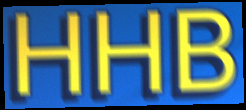
HHB